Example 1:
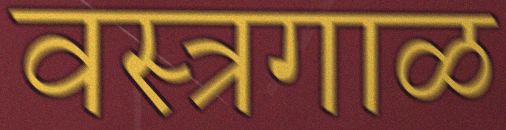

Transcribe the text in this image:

वस्त्रगाळ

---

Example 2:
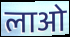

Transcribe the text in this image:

लाओ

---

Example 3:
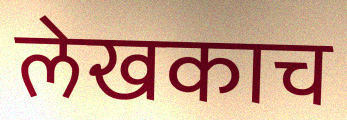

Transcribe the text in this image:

लेखकाच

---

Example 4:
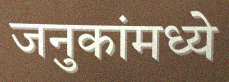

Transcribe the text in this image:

जनुकांमध्ये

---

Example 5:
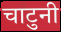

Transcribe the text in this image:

चाटुनी